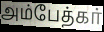
அம்பேத்கர்